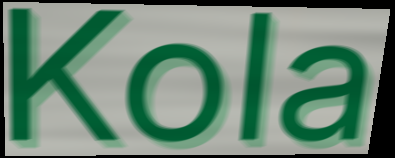
Kola